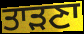
ਤਾੜਣਾ